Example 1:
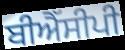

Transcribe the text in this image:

ਬੀਐੱਸੀਪੀ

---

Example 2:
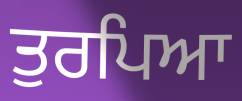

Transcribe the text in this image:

ਤੁਰਪਿਆ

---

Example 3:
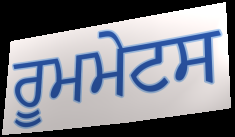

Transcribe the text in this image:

ਰੂਮਮੇਟਸ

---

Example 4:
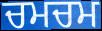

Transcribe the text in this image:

ਚਮਚਮ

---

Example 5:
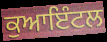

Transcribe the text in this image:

ਕੁਆਇੰਟਲ